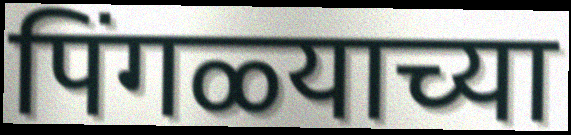
पिंगळ्याच्या